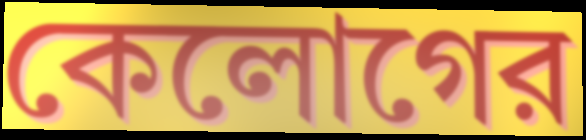
কেলোগের